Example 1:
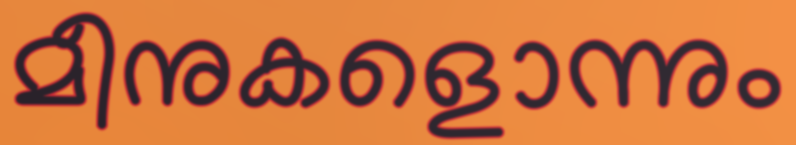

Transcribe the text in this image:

മീനുകളൊന്നും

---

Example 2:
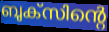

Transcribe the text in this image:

ബുക്‌സിന്റെ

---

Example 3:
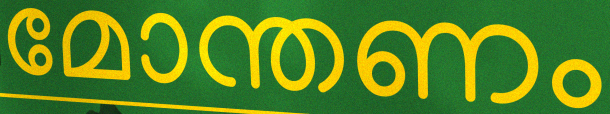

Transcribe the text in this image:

മോന്തണം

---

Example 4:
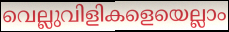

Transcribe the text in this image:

വെല്ലുവിളികളെയെല്ലാം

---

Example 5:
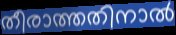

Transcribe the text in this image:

തീരാത്തതിനാൽ